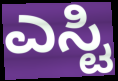
ಎಸ್ಟಿ